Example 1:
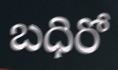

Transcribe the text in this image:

బధిరో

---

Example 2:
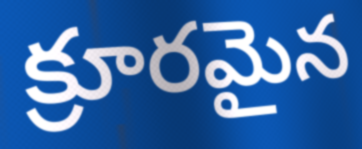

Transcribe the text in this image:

క్రూరమైన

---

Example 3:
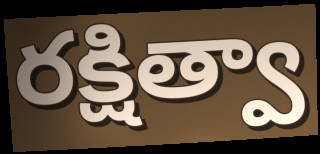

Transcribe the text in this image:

రక్షిత్వా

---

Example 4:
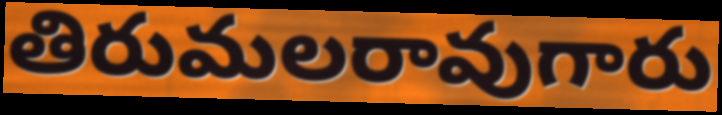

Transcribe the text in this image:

తిరుమలరావుగారు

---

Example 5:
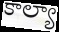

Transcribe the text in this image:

కాల్యా